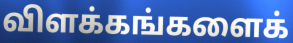
விளக்கங்களைக்